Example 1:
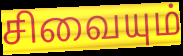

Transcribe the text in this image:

சிவையும்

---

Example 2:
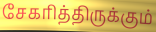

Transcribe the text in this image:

சேகரித்திருக்கும்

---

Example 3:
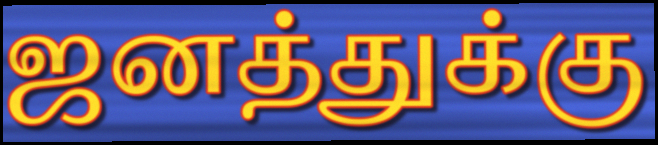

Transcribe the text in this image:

ஜனத்துக்கு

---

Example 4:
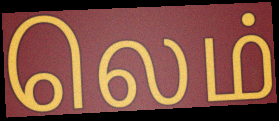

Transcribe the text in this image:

லெம்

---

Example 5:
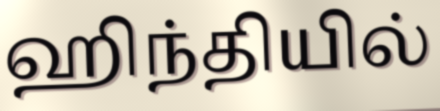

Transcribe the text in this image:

ஹிந்தியில்